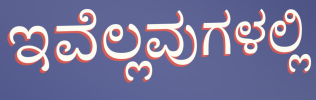
ಇವೆಲ್ಲವುಗಳಲ್ಲಿ